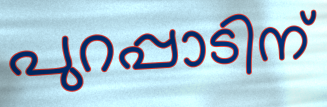
പുറപ്പാടിന്